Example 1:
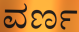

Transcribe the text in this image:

ವರ್ಣ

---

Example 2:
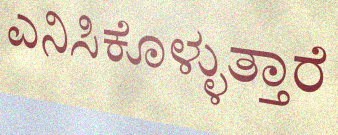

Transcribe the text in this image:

ಎನಿಸಿಕೊಳ್ಳುತ್ತಾರೆ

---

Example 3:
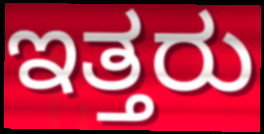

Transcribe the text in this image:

ಇತ್ತರು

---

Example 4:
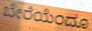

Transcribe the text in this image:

ಬೇರೆಯೆಂದೂ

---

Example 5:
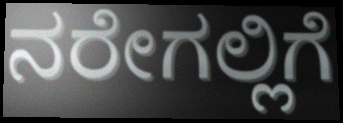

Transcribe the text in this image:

ನರೇಗಲ್ಲಿಗೆ